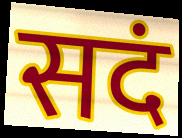
सदं